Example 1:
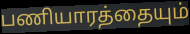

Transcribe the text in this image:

பணியாரத்தையும்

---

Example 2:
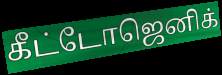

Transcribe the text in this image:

கீட்டோஜெனிக்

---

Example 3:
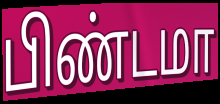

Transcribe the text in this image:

பிண்டமா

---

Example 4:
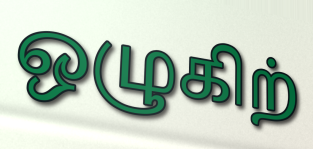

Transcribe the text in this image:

ஒழுகிற்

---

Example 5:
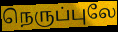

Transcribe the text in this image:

நெருப்புலே